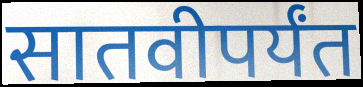
सातवीपर्यंत